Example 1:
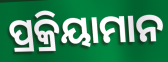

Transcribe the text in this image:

ପ୍ରକ୍ରିୟାମାନ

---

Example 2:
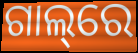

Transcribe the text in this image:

ଗାଲ୍‌ରେ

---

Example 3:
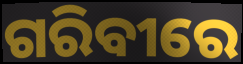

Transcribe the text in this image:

ଗରିବୀରେ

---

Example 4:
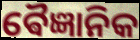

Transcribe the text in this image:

ଵୈଜ୍ଞାନିକ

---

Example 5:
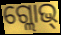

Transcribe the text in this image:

ଗ୍ଲୋଭ୍